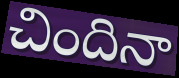
చిందినా